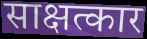
साक्षत्कार